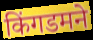
किंगडमने